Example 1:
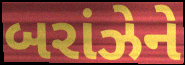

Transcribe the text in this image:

બરાંઝેને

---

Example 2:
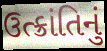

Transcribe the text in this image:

ઉત્ક્રાંતિનું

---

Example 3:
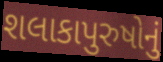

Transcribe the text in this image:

શલાકાપુરુષોનું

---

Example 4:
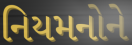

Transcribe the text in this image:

નિયમનોને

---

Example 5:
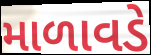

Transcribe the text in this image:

માળાવડે